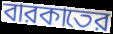
বারকাতের